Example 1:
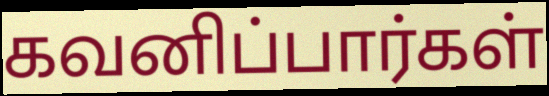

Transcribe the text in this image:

கவனிப்பார்கள்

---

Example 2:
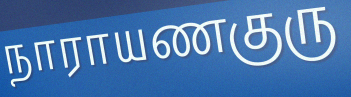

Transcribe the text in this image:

நாராயணகுரு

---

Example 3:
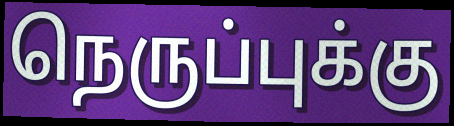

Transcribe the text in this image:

நெருப்புக்கு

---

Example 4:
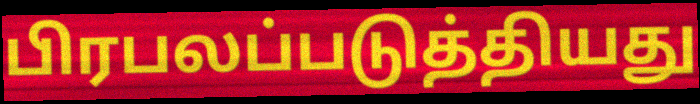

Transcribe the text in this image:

பிரபலப்படுத்தியது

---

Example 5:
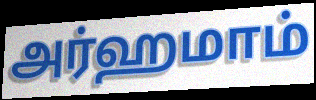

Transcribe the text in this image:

அர்ஹமாம்